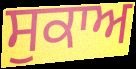
ਸੁਕਾਅ